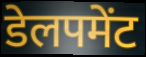
डेलपमेंट